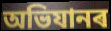
অভিযানৰ